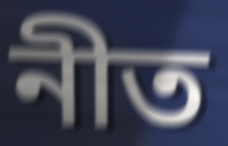
নীত